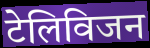
टेलिविजन